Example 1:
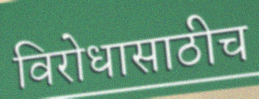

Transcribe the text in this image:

विरोधासाठीच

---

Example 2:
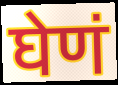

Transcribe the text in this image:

घेणं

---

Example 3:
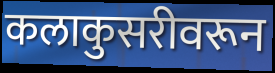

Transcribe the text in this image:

कलाकुसरीवरून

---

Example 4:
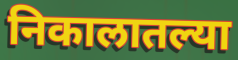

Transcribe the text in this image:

निकालातल्या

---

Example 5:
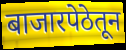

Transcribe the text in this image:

बाजारपेठेतून